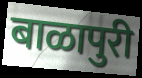
बाळापुरी